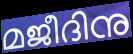
മജീദിനു